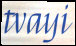
tvayi